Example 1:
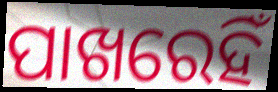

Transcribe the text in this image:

ପାଖରେହିଁ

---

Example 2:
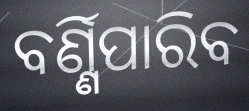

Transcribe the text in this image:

ବର୍ଣ୍ଣିପାରିବ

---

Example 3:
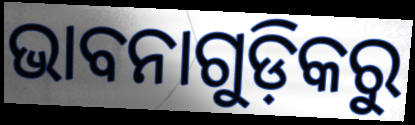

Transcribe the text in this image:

ଭାବନାଗୁଡ଼ିକରୁ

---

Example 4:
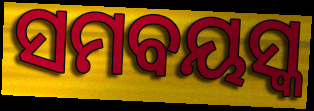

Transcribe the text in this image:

ସମବୟସ୍କ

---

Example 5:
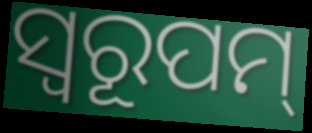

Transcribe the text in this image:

ସ୍ଵରୂପମ୍